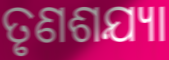
ତୃଣଶଯ୍ୟା